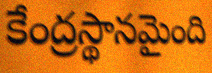
కేంద్రస్థానమైంది